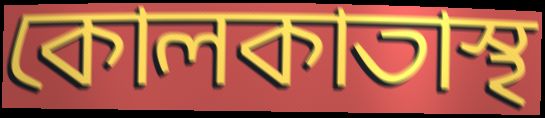
কোলকাতাস্থ